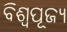
ବିଶ୍ୱପୂଜ୍ୟ